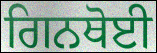
ਗਿਨਥੋਈ